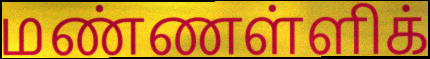
மண்ணள்ளிக்